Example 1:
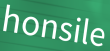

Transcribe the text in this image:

honsile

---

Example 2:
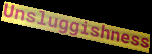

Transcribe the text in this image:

Unsluggishness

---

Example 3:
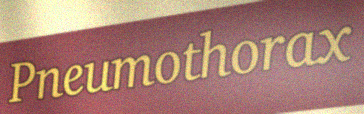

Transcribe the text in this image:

Pneumothorax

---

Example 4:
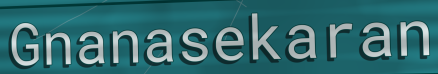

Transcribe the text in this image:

Gnanasekaran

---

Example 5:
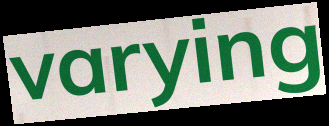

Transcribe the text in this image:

varying